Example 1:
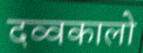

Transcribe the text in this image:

दव्वकालो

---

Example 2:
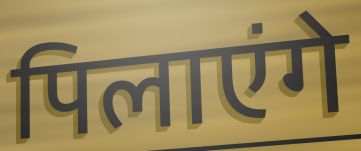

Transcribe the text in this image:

पिलाएंगे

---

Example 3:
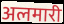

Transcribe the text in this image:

अलमारी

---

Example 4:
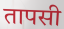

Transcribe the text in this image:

तापसी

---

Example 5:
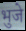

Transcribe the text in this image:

भुजे